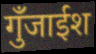
गुँजाईश